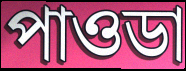
পাওডা